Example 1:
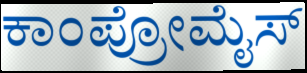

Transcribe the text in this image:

ಕಾಂಪ್ರೋಮೈಸ್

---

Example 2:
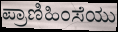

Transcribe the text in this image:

ಪ್ರಾಣಿಹಿಂಸೆಯು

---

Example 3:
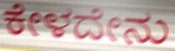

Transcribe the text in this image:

ಕೇಳದೇನು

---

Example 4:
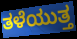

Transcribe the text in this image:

ತಳೆಯುತ್ತ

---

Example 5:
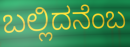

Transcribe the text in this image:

ಬಲ್ಲಿದನೆಂಬ